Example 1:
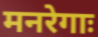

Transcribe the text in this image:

मनरेगाः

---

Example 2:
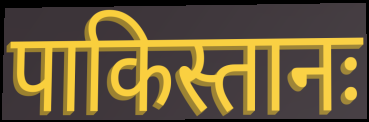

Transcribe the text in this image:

पाकिस्तानः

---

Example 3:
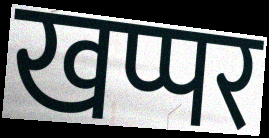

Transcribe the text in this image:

खप्पर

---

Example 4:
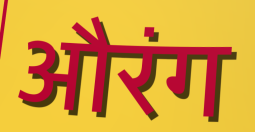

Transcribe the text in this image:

औरंग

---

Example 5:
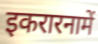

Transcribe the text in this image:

इकरारनामें